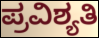
ಪ್ರವಿಶ್ಯತಿ